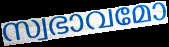
സ്വഭാവമോ